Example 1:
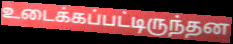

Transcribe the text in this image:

உடைக்கப்பட்டிருந்தன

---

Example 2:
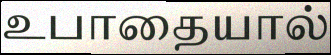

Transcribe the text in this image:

உபாதையால்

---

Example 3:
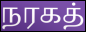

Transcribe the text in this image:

நரகத்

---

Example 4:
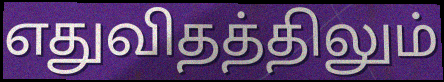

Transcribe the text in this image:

எதுவிதத்திலும்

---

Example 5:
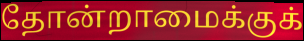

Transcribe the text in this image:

தோன்றாமைக்குக்